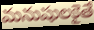
మనుషులకైతే